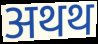
अथथ